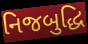
નિજબુદ્ધિ